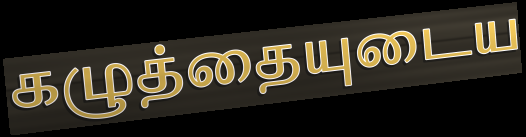
கழுத்தையுடைய